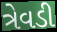
ત્રેવડી